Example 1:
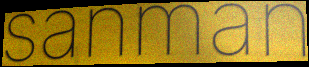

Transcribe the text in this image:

sanman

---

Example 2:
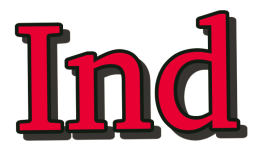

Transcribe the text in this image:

Ind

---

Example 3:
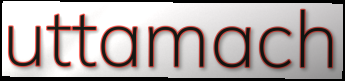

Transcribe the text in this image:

uttamach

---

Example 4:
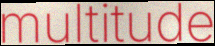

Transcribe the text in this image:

multitude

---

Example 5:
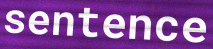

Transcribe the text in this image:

sentence